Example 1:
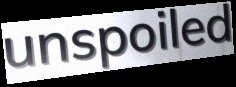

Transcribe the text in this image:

unspoiled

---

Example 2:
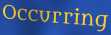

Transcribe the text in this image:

Occurring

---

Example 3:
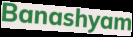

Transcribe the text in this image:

Banashyam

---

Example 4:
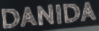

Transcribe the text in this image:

DANIDA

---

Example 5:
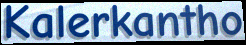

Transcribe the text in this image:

Kalerkantho